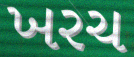
ખરચ